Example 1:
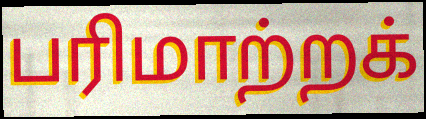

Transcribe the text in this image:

பரிமாற்றக்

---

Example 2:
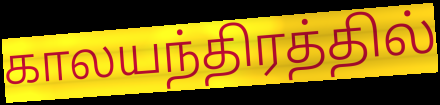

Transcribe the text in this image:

காலயந்திரத்தில்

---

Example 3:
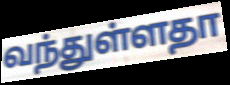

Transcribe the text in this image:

வந்துள்ளதா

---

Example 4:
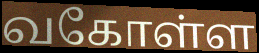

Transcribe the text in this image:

வகோள்ள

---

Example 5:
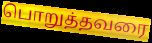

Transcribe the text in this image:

பொறுத்தவரை